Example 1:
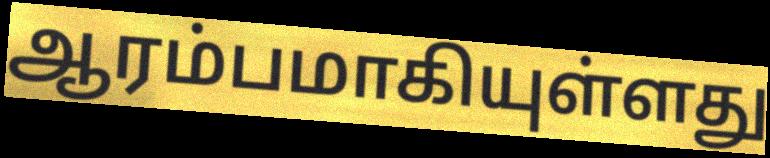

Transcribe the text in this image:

ஆரம்பமாகியுள்ளது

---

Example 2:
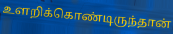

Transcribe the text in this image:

உளறிக்கொண்டிருந்தான்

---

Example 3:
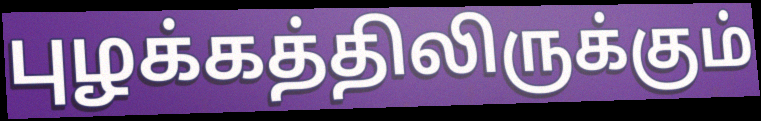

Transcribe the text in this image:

புழக்கத்திலிருக்கும்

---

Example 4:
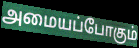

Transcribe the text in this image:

அமையப்போகும்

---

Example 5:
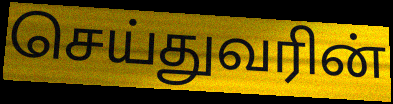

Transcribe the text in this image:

செய்துவரின்